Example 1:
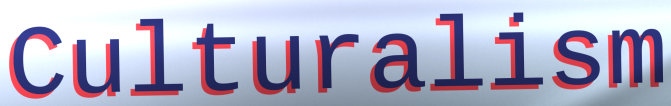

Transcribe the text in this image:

Culturalism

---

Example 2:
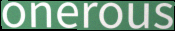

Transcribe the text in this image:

onerous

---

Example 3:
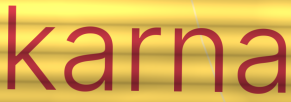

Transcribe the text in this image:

karna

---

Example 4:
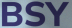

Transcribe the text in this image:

BSY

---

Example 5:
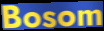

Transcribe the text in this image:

Bosom